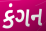
કંગન